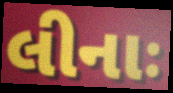
લીનાઃ